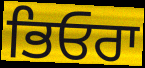
ਭਿਓਰਾ